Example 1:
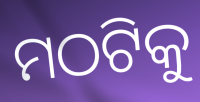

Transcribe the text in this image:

ମଠଟିକୁ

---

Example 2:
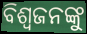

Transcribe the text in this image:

ବିଶ୍ୱଜନଙ୍କୁ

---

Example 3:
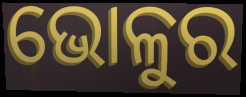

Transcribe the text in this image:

ଭୋଳୁର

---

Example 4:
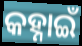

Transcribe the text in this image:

କହ୍ନାଇଁ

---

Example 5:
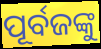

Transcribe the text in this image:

ପୂର୍ବଜଙ୍କୁ